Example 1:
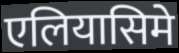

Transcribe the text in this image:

एलियासिमे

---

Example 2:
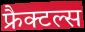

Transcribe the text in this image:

फ्रैक्टल्स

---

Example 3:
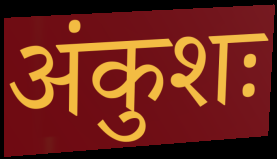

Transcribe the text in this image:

अंकुशः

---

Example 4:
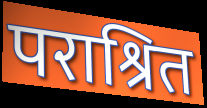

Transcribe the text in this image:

पराश्रित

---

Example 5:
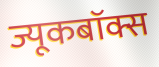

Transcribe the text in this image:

ज्यूकबॉक्स